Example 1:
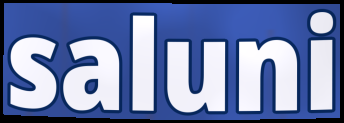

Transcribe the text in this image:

saluni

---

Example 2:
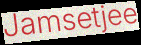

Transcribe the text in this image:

Jamsetjee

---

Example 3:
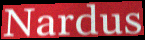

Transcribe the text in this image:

Nardus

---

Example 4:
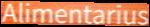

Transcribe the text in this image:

Alimentarius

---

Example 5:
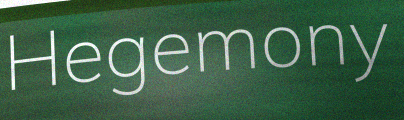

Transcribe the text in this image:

Hegemony